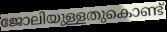
ജോലിയുള്ളതുകൊണ്ട്